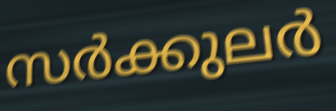
സർക്കുലർ